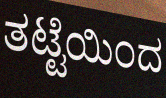
ತಟ್ಟೆಯಿಂದ